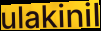
ulakinil